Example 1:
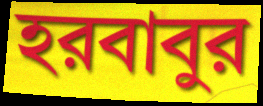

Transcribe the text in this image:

হরবাবুর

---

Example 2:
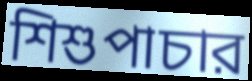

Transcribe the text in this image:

শিশুপাচার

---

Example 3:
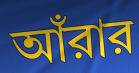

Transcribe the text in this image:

আঁরার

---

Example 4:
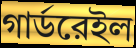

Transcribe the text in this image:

গার্ডরেইল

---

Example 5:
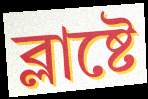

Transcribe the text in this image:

ব্লাষ্টে